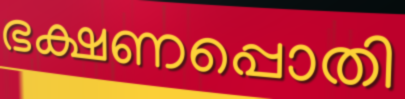
ഭക്ഷണപ്പൊതി